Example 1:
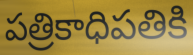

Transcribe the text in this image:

పత్రికాధిపతికి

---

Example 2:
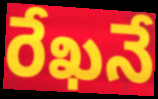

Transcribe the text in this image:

రేఖనే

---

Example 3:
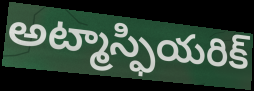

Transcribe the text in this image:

అట్మాస్ఫియరిక్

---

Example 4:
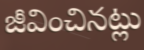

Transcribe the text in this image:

జీవించినట్లు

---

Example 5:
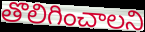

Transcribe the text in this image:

తొలిగించాలని